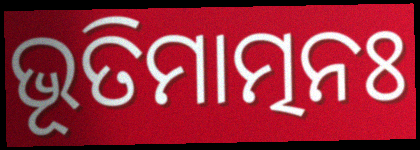
ଭୂତିମାତ୍ମନଃ